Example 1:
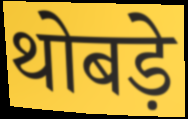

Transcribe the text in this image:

थोबड़े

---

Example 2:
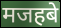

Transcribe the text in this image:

मजहबे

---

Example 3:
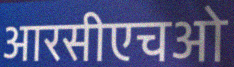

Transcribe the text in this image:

आरसीएचओ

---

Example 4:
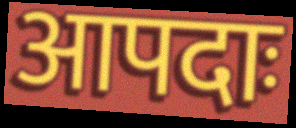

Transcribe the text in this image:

आपदाः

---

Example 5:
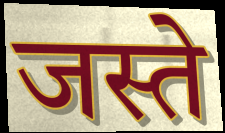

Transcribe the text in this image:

जस्ते